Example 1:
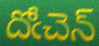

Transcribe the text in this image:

దోఁచెన్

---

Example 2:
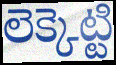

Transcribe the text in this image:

లెక్కెట్టి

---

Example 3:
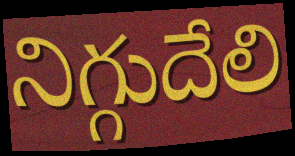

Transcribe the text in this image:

నిగ్గుదేలి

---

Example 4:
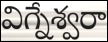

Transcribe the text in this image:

విగ్నేశ్వరా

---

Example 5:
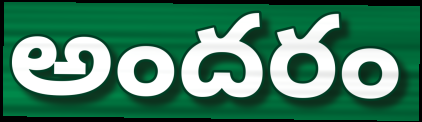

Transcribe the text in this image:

అందరం